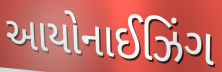
આયોનાઈઝિંગ